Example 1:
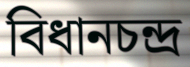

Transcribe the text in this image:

বিধানচন্দ্র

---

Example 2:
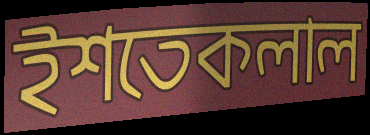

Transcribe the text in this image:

ইশতেকলাল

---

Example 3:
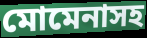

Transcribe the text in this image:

মোমেনাসহ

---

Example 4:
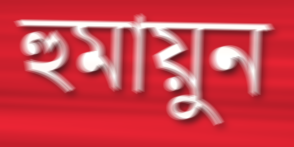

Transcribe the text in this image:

হুমায়ুন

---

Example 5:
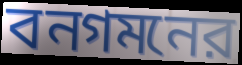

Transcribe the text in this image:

বনগমনের